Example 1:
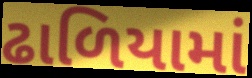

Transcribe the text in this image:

ઢાળિયામાં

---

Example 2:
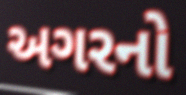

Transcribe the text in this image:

અગરનો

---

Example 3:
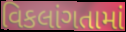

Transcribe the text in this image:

વિકલાંગતામાં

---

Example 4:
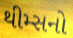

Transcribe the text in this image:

થીમ્સનો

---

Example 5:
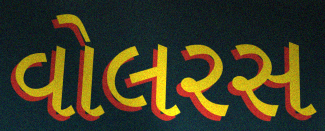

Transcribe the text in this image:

વોલરસ